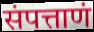
संपत्ताणं